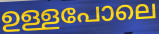
ഉള്ളപോലെ